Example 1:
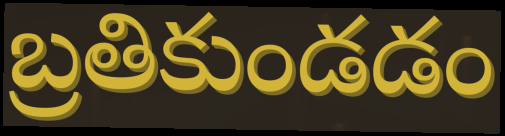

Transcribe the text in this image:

బ్రతికుండడం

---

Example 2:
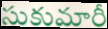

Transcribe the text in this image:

సుకుమారీ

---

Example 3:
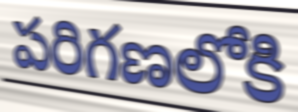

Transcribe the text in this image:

పరిగణలోకి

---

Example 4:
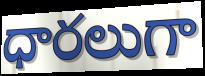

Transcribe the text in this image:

ధారలుగా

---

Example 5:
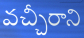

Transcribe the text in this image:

వచ్చీరాని